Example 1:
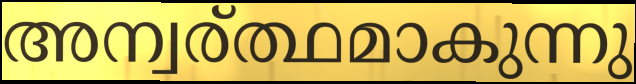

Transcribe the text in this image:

അന്വര്ത്ഥമാകുന്നു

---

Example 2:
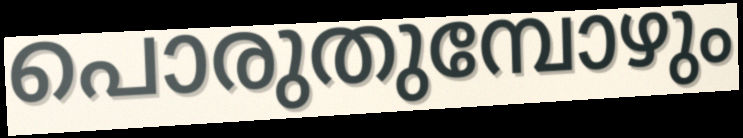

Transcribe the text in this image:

പൊരുതുമ്പോഴും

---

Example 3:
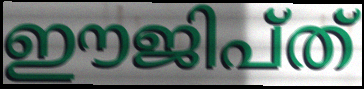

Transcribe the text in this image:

ഈജിപ്ത്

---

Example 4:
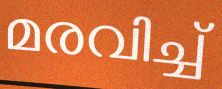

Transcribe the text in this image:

മരവിച്ച്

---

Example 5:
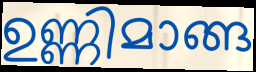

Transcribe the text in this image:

ഉണ്ണിമാങ്ങ